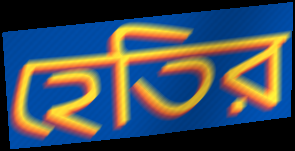
হেতির